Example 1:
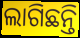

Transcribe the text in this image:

ଲାଗିଛନ୍ତି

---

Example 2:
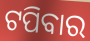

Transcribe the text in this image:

ଟପିବାର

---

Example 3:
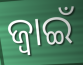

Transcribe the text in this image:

ଜ୍ବାଇଁ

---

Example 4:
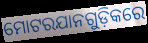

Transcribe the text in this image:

ମୋଟରଯାନଗୁଡ଼ିକରେ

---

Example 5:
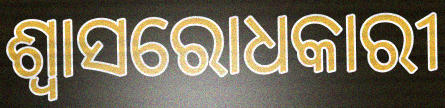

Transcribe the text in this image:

ଶ୍ୱାସରୋଧକାରୀ